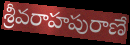
శ్రీవరాహపురాణే